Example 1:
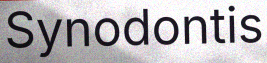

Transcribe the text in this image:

Synodontis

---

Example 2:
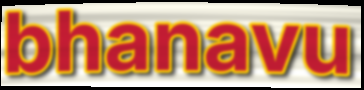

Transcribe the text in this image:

bhanavu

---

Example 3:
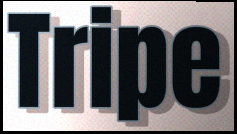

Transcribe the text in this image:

Tripe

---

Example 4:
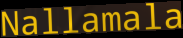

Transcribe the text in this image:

Nallamala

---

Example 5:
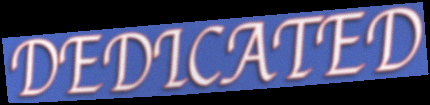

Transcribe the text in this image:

DEDICATED